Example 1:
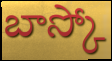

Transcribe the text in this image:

బాస్కో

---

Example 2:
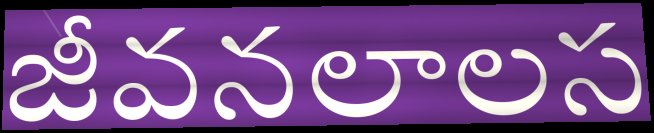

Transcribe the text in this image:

జీవనలాలస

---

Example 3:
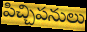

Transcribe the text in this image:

పిచ్చిపనులు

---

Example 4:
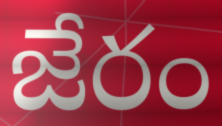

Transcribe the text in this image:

జేరం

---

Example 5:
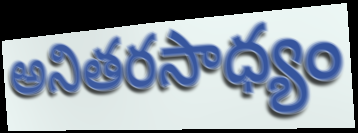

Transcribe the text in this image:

అనితరసాధ్యం